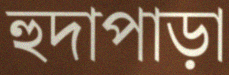
হুদাপাড়া